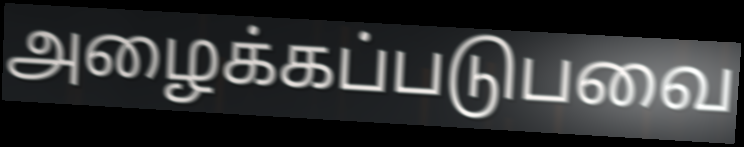
அழைக்கப்படுபவை